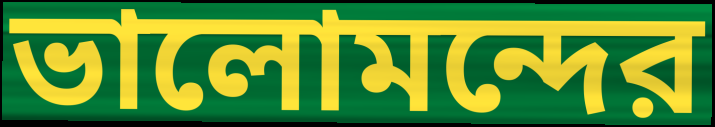
ভালোমন্দের